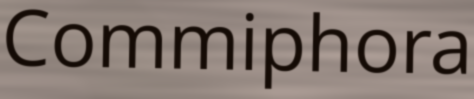
Commiphora